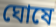
ঘোষে